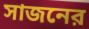
সাজনের